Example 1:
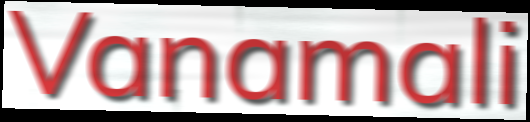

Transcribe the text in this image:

Vanamali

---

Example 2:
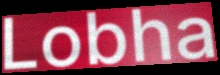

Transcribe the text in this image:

Lobha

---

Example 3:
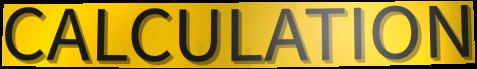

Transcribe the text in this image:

CALCULATION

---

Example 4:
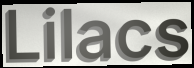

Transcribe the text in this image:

Lilacs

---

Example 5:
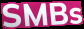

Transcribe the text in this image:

SMBs